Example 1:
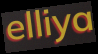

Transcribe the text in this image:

elliya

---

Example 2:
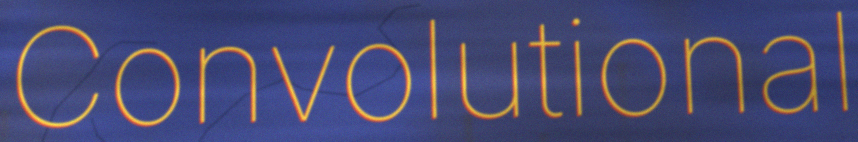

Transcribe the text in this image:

Convolutional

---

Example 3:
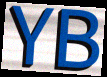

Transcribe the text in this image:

YB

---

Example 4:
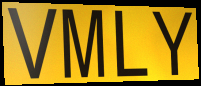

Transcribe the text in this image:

VMLY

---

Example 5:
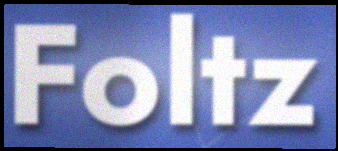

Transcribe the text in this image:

Foltz